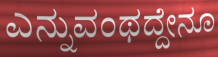
ಎನ್ನುವಂಥದ್ದೇನೂ